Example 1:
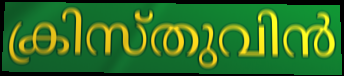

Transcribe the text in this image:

ക്രിസ്തുവിൻ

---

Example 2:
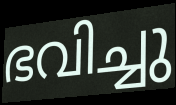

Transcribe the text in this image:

ഭവിച്ചു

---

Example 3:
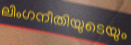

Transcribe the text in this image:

ലിംഗനീതിയുടെയും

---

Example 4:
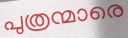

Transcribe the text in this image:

പുത്രന്മാരെ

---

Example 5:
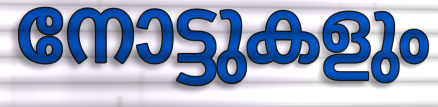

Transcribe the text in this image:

നോട്ടുകളും